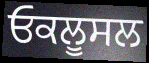
ਓਕਲੂਸਲ